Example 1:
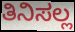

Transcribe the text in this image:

ತಿನಿಸಲ್ಲ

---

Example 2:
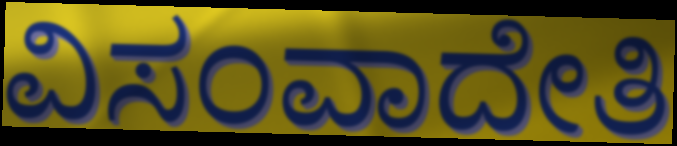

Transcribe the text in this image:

ವಿಸಂವಾದೇತಿ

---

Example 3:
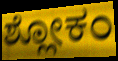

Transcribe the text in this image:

ಶ್ಲೋಕಂ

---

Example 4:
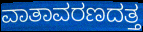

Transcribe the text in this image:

ವಾತಾವರಣದತ್ತ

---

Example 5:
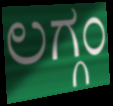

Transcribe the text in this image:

ಲಗ್ಗಂ